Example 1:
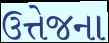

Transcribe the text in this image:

ઉત્તેજના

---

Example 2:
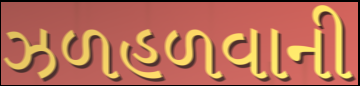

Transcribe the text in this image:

ઝળહળવાની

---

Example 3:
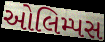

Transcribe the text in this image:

ઓલિમ્પસ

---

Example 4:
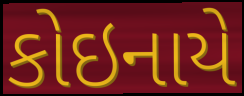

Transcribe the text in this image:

કોઇનાયે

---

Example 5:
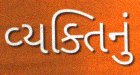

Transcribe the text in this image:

વ્‍યક્તિનું